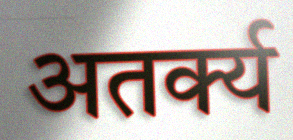
अतर्क्य